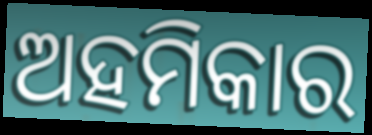
ଅହମିକାର